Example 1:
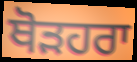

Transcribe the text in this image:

ਥੋੜਹਰਾ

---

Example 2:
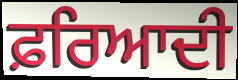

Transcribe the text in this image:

ਫ਼ਰਿਆਦੀ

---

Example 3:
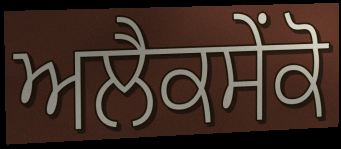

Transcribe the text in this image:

ਅਲੈਕਸੇਂਕੋ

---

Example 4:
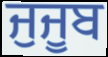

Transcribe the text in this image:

ਜੁਜੂਬ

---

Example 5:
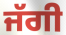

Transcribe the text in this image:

ਜੱਗੀ